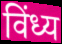
विंध्य